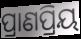
ପ୍ରାଣପ୍ରିୟ